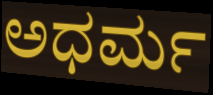
ಅಧರ್ಮ